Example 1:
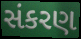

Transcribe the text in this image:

સંકરણ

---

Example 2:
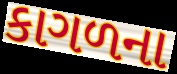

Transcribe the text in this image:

કાગળના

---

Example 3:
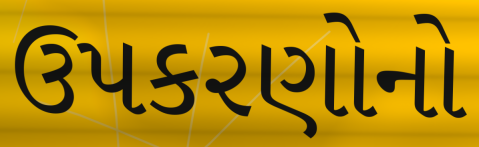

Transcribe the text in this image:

ઉપકરણોનો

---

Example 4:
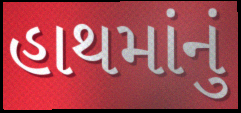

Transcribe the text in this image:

હાથમાંનું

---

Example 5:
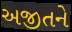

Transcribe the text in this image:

અજીતને